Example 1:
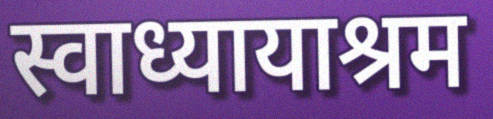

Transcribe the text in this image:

स्वाध्यायाश्रम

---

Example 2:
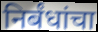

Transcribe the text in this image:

निर्बंधांचा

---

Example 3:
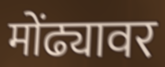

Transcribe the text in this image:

मोंढ्यावर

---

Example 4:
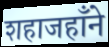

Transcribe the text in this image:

शहाजहाँने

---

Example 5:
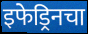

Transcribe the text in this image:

इफेड्रिनचा